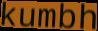
kumbh